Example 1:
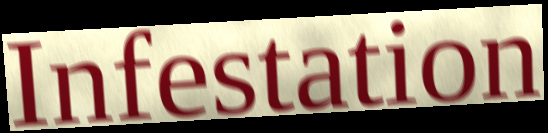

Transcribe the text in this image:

Infestation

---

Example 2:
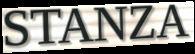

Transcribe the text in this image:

STANZA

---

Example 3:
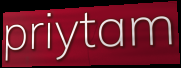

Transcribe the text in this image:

priytam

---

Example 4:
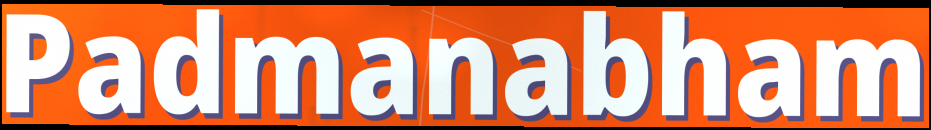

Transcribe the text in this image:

Padmanabham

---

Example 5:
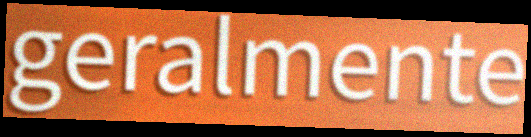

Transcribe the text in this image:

geralmente